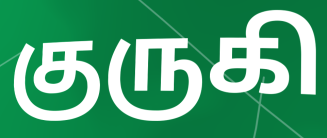
குருகி